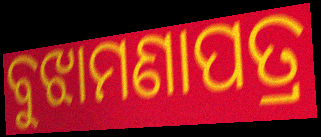
ବୁଝାମଣାପତ୍ର